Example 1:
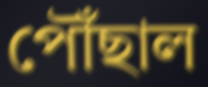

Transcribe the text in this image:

পৌঁছাল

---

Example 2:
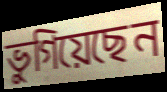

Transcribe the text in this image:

ভুগিয়েছেন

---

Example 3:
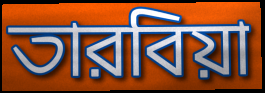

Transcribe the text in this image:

তারবিয়া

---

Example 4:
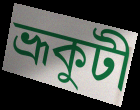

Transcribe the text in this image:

ভ্রূকুটী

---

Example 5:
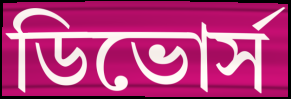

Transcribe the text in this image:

ডিভোর্স